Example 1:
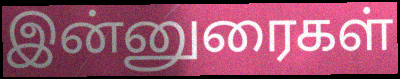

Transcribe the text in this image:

இன்னுரைகள்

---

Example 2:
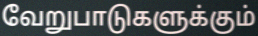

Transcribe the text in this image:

வேறுபாடுகளுக்கும்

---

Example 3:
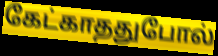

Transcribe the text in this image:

கேட்காததுபோல்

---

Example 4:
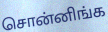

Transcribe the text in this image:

சொன்னிங்க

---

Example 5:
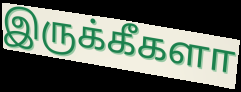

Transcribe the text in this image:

இருக்கீகளா